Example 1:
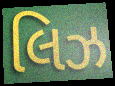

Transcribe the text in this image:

લિઝ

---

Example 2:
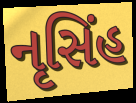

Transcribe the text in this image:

નૃસિંહ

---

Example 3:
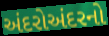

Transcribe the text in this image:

અંદરોઅંદરનો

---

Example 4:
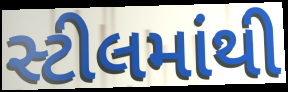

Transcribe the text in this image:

સ્ટીલમાંથી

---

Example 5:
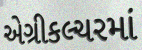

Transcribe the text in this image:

એગ્રીકલ્ચરમાં